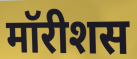
मॉरीशस